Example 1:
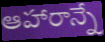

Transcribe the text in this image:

ఆహారాన్నే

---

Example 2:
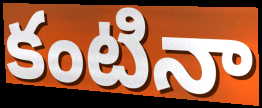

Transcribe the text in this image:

కంటినా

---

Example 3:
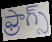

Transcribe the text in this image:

ఫ్రాగ్స్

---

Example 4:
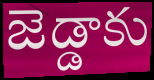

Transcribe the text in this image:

జెడ్డాకు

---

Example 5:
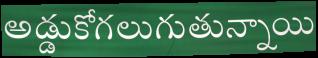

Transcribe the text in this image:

అడ్డుకోగలుగుతున్నాయి